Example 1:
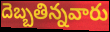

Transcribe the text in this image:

దెబ్బతిన్నవారు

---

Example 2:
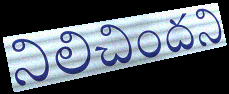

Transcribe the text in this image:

నిలిచిందని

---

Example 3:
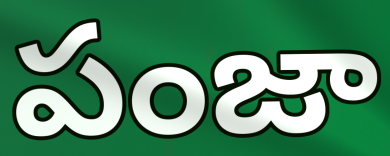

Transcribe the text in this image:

పంజా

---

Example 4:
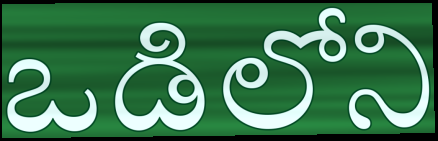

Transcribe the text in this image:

ఒడిలోని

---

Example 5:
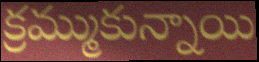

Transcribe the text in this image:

క్రమ్ముకున్నాయి